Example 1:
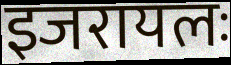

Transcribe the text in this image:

इजरायलः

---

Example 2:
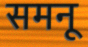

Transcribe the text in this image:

समनू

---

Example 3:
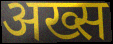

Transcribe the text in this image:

अख्स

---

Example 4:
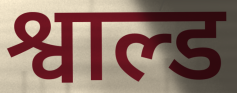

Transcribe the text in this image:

श्वाल्ड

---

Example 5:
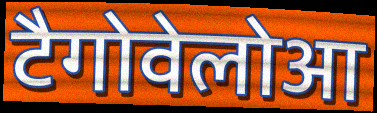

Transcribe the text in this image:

टैगोवेलोआ